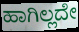
ಹಾಗಿಲ್ಲದೇ